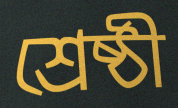
শ্রেষ্ঠী